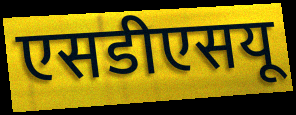
एसडीएसयू